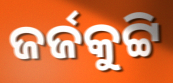
ଜର୍ଜକୁଟ୍ଟି